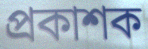
প্রকাশক